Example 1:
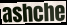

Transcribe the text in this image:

ashche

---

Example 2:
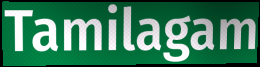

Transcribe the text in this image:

Tamilagam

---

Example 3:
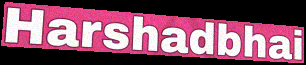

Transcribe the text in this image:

Harshadbhai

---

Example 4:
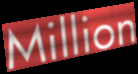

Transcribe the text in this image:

Million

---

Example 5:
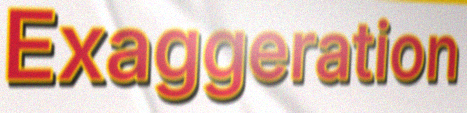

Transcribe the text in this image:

Exaggeration